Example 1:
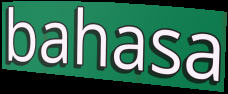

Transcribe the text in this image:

bahasa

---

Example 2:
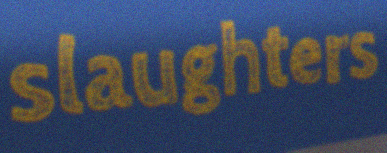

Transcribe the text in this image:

slaughters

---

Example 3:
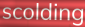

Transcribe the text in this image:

scolding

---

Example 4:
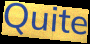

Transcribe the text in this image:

Quite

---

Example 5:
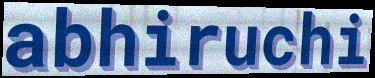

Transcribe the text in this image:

abhiruchi